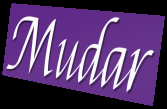
Mudar